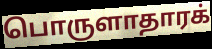
பொருளாதாரக்